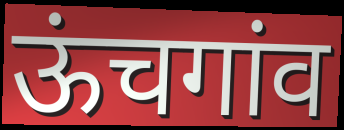
ऊंचगांव